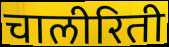
चालीरिती